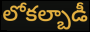
లోకల్బాడీ